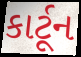
કાર્ટૂન